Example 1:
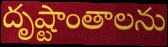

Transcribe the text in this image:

దృష్టాంతాలను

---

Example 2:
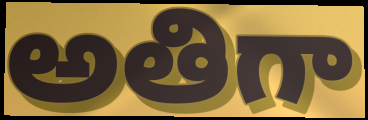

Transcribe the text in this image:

అతిగా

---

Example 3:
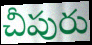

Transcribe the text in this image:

చీపురు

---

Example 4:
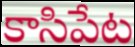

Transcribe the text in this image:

కాసిపేట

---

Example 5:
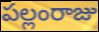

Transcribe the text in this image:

పల్లంరాజు